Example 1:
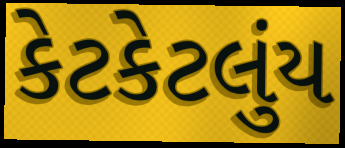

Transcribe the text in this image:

કેટકેટલુંય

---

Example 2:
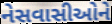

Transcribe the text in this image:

નેસવાસીઓને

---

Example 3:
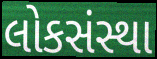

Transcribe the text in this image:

લોકસંસ્થા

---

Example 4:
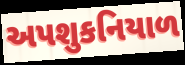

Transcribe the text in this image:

અપશુકનિયાળ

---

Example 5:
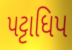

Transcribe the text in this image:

પટ્ટાધિપ